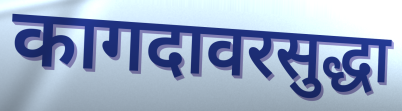
कागदावरसुद्धा